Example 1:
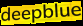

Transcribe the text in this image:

deepblue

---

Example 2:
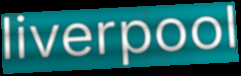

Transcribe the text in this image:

liverpool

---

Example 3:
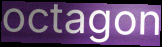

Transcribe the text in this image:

octagon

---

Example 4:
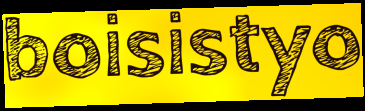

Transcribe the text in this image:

boisistyo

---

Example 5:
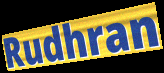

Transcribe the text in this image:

Rudhran